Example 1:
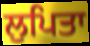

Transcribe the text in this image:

ਲੁਪਿਤਾ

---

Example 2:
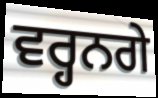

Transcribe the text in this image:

ਵਰ੍ਹਨਗੇ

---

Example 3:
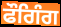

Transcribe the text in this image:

ਫੌਗਿੰਗ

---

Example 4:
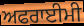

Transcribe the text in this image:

ਅਫਰਾਈਮੀ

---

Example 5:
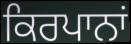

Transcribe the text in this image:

ਕਿਰਪਾਨਾਂ